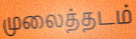
முலைத்தடம்